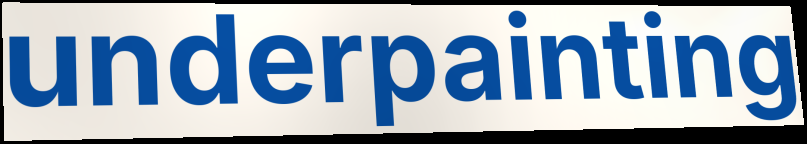
underpainting